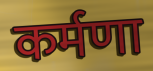
कर्मणा